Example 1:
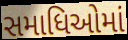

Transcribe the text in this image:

સમાધિઓમાં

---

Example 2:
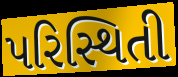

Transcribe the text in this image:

પરિસ્થિતી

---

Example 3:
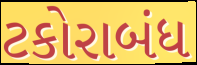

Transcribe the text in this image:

ટકોરાબંધ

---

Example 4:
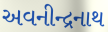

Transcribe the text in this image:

અવનીન્દ્રનાથ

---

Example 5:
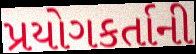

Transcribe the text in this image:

પ્રયોગકર્તાની